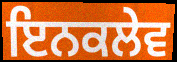
ਇਨਕਲੇਵ